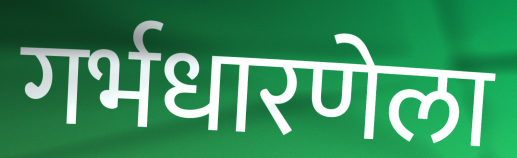
गर्भधारणेला